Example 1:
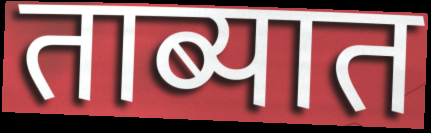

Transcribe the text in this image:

ताब्यात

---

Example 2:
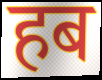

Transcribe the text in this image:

हब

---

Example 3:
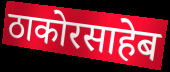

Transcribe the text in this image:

ठाकोरसाहेब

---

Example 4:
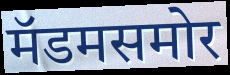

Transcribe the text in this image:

मॅडमसमोर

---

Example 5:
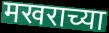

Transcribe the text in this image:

मखराच्या